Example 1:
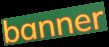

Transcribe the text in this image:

banner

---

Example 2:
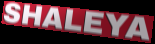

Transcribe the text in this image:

SHALEYA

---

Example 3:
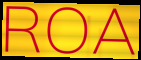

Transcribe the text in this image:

ROA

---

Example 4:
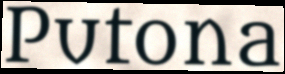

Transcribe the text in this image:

Putona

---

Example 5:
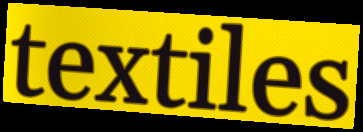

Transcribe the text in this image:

textiles